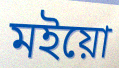
মইয়ো